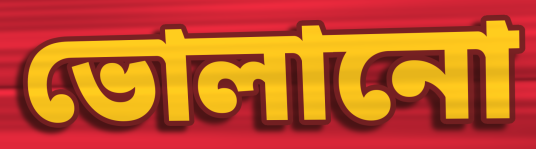
ভোলানো